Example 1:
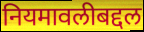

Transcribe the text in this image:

नियमावलीबद्दल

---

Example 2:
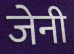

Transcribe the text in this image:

जेनी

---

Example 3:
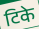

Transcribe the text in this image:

टिके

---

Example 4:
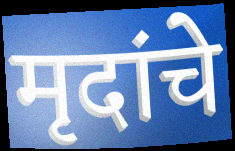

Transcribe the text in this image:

मृदांचे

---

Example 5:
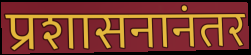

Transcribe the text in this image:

प्रशासनानंतर